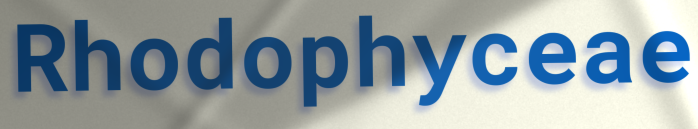
Rhodophyceae